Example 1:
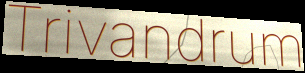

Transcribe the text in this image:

Trivandrum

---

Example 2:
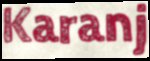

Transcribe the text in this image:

Karanj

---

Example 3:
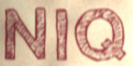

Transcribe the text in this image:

NIQ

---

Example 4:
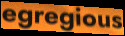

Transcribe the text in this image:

egregious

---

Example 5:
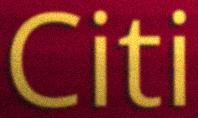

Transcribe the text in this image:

Citi